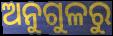
ଅନୁଗୁଳରୁ